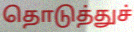
தொடுத்துச்